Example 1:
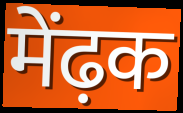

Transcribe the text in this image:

मेंढ़क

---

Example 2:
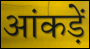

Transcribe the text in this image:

आंकड़ें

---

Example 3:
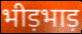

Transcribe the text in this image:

भीड़भाड़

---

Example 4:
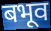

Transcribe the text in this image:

बभूव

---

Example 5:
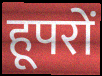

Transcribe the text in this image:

हूपरों